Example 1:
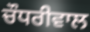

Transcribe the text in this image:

ਚੌਧਰੀਵਾਲ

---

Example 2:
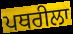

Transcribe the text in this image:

ਪਥਰੀਲਾ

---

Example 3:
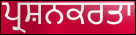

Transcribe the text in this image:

ਪ੍ਰਸ਼ਨਕਰਤਾ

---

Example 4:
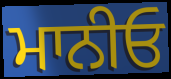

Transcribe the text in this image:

ਮਾਨੀਓ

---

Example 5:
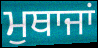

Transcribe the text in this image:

ਮੁਥਾਜਾਂ